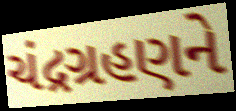
ચંદ્રગ્રહણને